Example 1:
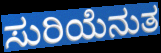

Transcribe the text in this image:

ಸುರಿಯೆನುತ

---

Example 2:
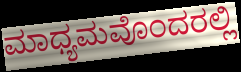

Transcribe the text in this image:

ಮಾಧ್ಯಮವೊಂದರಲ್ಲಿ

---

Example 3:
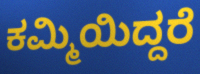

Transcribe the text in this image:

ಕಮ್ಮಿಯಿದ್ದರೆ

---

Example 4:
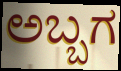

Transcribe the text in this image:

ಅಬ್ಬಗ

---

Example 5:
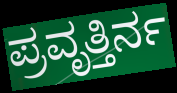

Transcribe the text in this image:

ಪ್ರವೃತ್ತಿರ್ನ